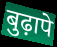
बुढ़ापे